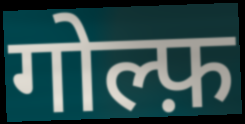
गोल्फ़